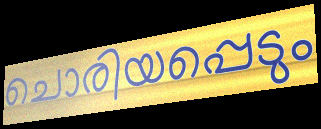
ചൊരിയപ്പെടും